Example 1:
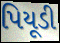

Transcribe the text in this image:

પિયૂડી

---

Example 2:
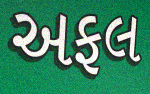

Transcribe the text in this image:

અફલ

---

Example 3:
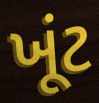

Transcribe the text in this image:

ખૂંટ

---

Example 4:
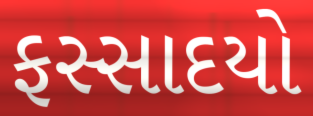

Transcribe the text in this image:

ફસ્સાદયો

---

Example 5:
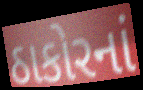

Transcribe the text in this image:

ઠાકોરનાં